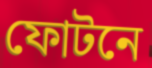
ফোটনে